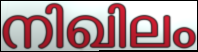
നിഖിലം